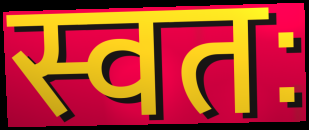
स्वतः